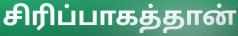
சிரிப்பாகத்தான்